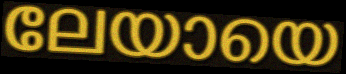
ലേയായെ